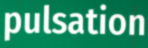
pulsation